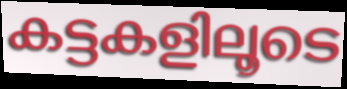
കട്ടകളിലൂടെ